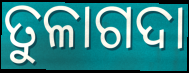
ତୁଳାଗଦା